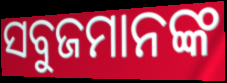
ସବୁଜମାନଙ୍କ